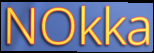
NOkka